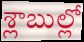
శ్లాబుల్లో